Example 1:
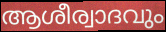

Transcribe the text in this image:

ആശീര്വാദവും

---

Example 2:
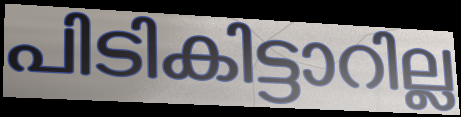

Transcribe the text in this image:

പിടികിട്ടാറില്ല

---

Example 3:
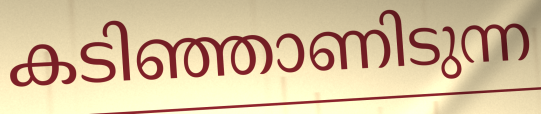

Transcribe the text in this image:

കടിഞ്ഞാണിടുന്ന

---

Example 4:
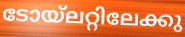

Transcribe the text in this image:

ടോയ്ലറ്റിലേക്കു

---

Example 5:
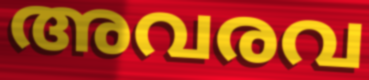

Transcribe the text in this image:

അവരവ